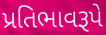
પ્રતિભાવરૂપે